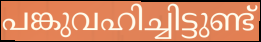
പങ്കുവഹിച്ചിട്ടുണ്ട്